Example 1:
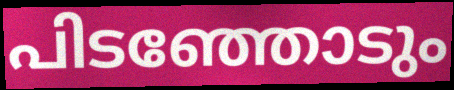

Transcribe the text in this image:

പിടഞ്ഞോടും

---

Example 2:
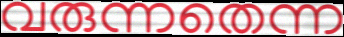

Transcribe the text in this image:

വരുന്നതെന്ന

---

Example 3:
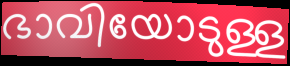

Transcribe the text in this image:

ഭാവിയോടുള്ള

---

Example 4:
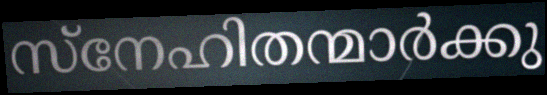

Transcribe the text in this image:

സ്നേഹിതന്മാർക്കു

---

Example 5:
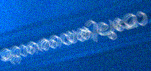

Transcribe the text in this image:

മറ്റാരെയെങ്കിലുമോ